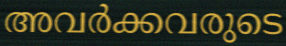
അവർക്കവരുടെ